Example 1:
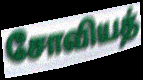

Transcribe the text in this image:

சோவியத்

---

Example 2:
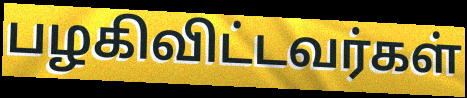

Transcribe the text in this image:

பழகிவிட்டவர்கள்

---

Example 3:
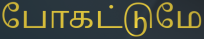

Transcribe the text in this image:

போகட்டுமே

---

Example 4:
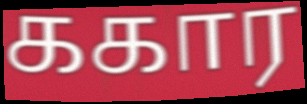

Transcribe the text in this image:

ககார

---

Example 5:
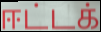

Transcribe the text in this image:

ஈட்டக்